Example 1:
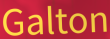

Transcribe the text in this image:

Galton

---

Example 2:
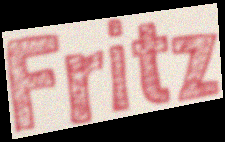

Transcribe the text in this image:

Fritz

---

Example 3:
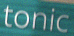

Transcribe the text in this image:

tonic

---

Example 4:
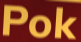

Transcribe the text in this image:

Pok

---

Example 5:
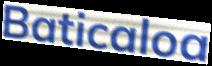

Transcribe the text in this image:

Baticaloa